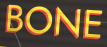
BONE